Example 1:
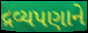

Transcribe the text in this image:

દ્રવ્યપણાને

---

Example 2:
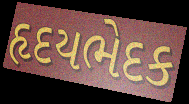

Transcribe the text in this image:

હૃદયભેદક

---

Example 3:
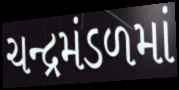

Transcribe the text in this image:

ચન્દ્રમંડળમાં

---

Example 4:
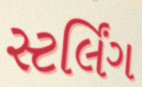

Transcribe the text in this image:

સ્ટર્લિંગ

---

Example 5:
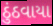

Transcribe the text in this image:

ઠુંઠવાયા